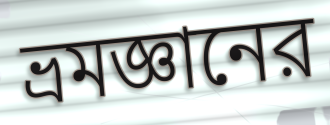
ভ্রমজ্ঞানের